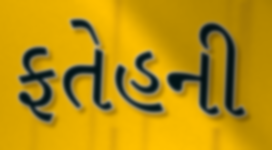
ફતેહની